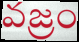
వజ్రం